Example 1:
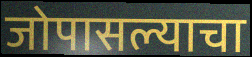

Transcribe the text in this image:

जोपासल्याचा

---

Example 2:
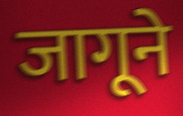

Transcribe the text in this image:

जागूने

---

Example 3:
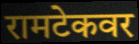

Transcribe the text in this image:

रामटेकवर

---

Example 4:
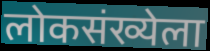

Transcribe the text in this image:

लोकसंख्येला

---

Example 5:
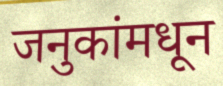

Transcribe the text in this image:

जनुकांमधून